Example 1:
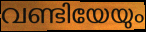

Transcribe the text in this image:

വണ്ടിയേയും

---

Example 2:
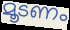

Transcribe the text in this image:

മൂടണം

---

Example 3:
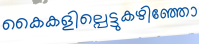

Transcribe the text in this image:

കൈകളില്പെട്ടുകഴിഞ്ഞോ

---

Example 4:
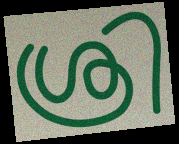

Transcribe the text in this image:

ശ്രി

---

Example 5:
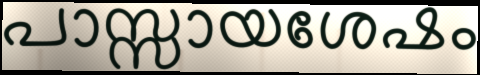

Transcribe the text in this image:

പാസ്സായശേഷം